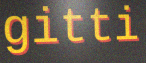
gitti